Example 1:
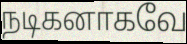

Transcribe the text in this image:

நடிகனாகவே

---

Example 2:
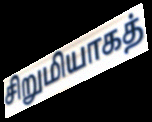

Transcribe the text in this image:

சிறுமியாகத்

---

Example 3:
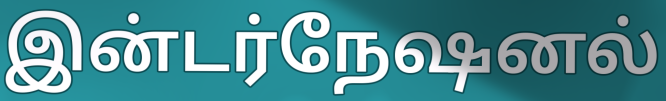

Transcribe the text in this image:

இன்டர்நேஷனல்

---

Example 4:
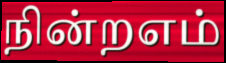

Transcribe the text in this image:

நின்றஎம்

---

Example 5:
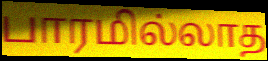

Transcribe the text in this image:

பாரமில்லாத